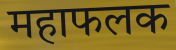
महाफलक